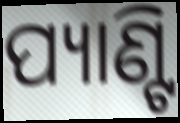
ପ୍ୟାଣ୍ଟି